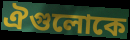
ঐগুলোকে